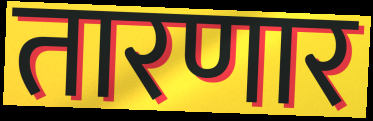
तारणार